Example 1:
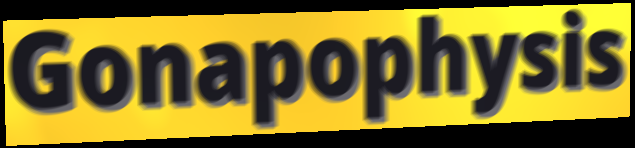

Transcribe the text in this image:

Gonapophysis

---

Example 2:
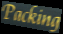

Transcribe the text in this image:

Packing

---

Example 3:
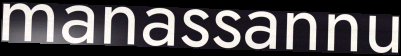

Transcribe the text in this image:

manassannu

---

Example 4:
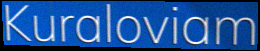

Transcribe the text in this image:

Kuraloviam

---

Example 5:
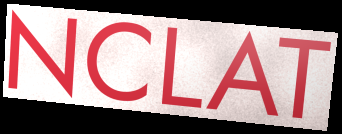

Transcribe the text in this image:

NCLAT